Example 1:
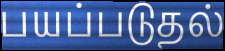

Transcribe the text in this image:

பயப்படுதல்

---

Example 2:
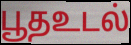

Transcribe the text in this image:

பூதஉடல்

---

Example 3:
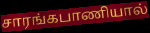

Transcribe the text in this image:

சாரங்கபாணியால்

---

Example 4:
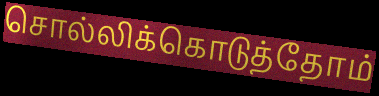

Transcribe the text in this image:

சொல்லிக்கொடுத்தோம்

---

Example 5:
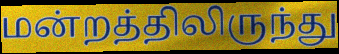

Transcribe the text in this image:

மன்றத்திலிருந்து